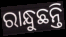
ରାନ୍ଧୁଛନ୍ତି